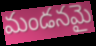
మండనమై